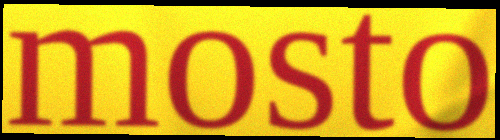
mosto